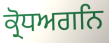
ਕ੍ਰੋਧਅਗਨਿ